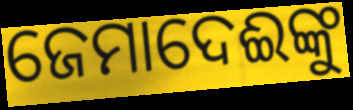
ଜେମାଦେଈଙ୍କୁ